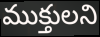
ముక్తులని